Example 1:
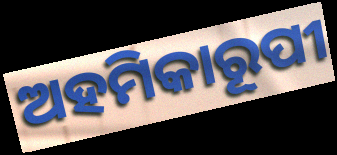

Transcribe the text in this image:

ଅହମିକାରୂପୀ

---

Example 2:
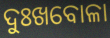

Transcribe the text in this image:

ଦୁଃଖବୋଳା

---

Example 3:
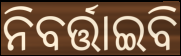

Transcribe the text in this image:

ନିବର୍ତ୍ତାଇବି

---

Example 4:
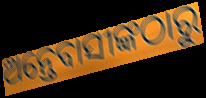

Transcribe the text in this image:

ଅନ୍ତେବାସୀଙ୍କଠାରୁ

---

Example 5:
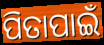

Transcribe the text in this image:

ପିତାପାଇଁ